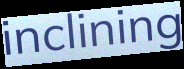
inclining